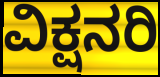
ವಿಕ್ಷನರಿ